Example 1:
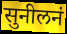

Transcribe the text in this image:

सुनीलनं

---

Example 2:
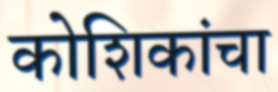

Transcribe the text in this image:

कोशिकांचा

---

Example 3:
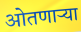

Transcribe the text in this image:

ओतणाऱ्या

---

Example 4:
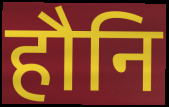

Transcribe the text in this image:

हौनि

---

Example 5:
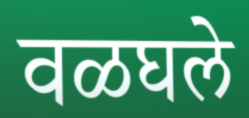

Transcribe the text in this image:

वळघले